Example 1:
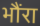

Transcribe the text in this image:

भौंरा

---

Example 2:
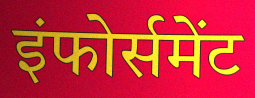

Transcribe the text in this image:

इंफोर्समेंट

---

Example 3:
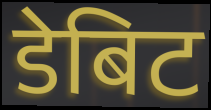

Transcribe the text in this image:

डेबिट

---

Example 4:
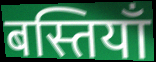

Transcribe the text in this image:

बस्तियाँ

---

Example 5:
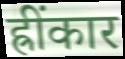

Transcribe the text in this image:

ह्रींकार